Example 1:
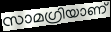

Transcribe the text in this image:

സാമഗ്രിയാണ്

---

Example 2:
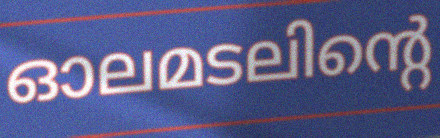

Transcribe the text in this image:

ഓലമടലിന്റെ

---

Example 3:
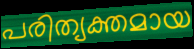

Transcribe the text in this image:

പരിത്യക്തമായ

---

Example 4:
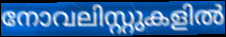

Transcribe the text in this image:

നോവലിസ്റ്റുകളിൽ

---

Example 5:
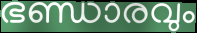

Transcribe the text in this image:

ഭണ്ഡാരവും